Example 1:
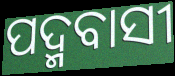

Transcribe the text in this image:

ପଦ୍ମବାସୀ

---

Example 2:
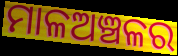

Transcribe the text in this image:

ମାଳଅଞ୍ଚଳର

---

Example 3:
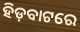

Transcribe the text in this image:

ହିଡ଼ବାଟରେ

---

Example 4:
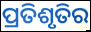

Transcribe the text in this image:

ପ୍ରତିଶୃତିର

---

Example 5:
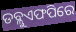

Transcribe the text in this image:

ଡବ୍ଲୁଏଫପିରେ